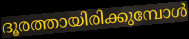
ദൂരത്തായിരിക്കുമ്പോൾ